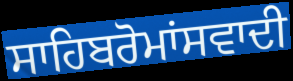
ਸਾਹਿਬਰੋਮਾਂਸਵਾਦੀ